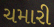
ચમારી